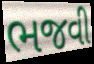
ભજવી